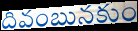
దివంబునకుం